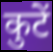
कुटें